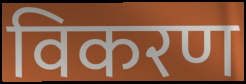
विकरण